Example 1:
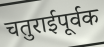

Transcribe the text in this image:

चतुराईपूर्वक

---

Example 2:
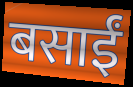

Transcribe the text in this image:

बसाईं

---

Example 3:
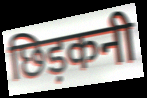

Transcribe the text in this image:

छिड़कनी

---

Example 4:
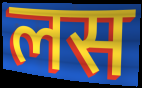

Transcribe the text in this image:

लस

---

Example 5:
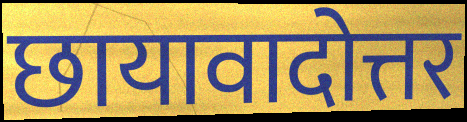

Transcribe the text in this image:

छायावादोत्तर